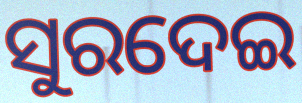
ସୁରଦେଇ